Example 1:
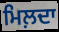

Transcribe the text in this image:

ਮਿਲ਼ਦਾ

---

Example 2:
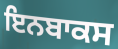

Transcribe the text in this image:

ਇਨਬਾਕਸ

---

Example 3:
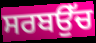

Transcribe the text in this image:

ਸਰਬਉੱਚ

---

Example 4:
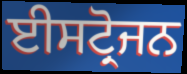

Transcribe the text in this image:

ਈਸਟ੍ਰੋਜਨ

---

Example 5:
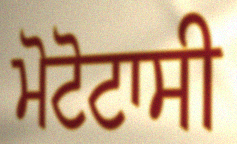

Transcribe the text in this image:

ਮੋਟੋਟਾਸੀ